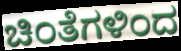
ಚಿಂತೆಗಳಿಂದ